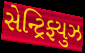
સેન્ટ્રિફ્યુઝ